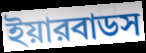
ইয়ারবাডস